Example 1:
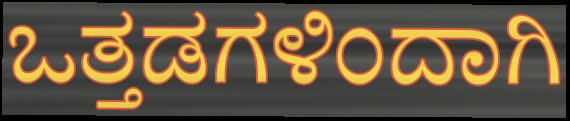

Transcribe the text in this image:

ಒತ್ತಡಗಳಿಂದಾಗಿ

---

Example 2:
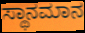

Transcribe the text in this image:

ಸ್ಥಾನಮಾನ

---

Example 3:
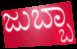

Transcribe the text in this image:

ಜುಬ್ಬಾ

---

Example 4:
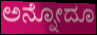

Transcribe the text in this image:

ಅನ್ನೋದೂ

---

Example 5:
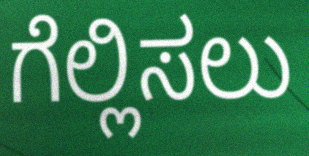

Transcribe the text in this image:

ಗೆಲ್ಲಿಸಲು